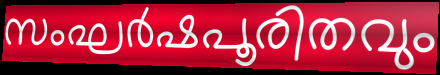
സംഘർഷപൂരിതവും